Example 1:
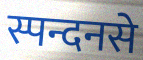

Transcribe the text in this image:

स्पन्दनसे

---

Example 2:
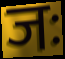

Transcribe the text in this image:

जः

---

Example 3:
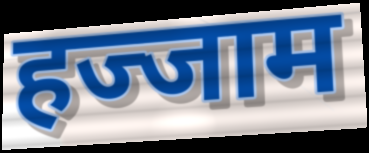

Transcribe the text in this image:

हज्जाम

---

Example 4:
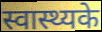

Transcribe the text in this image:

स्वास्थ्यके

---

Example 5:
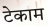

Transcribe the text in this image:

टेकाम